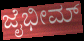
ಜೈಭೀಮ್